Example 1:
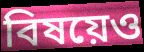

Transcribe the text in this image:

বিষয়েও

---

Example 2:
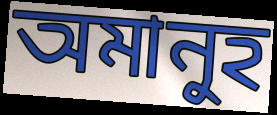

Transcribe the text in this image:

অমানুহ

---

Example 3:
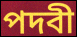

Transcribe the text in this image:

পদবী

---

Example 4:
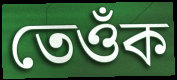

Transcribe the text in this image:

তেওঁক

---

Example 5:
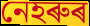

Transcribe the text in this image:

নেহৰুৰ